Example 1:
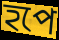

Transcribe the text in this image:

হপে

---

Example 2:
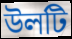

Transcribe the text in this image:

উলটি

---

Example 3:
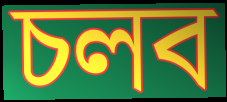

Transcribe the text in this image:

চলব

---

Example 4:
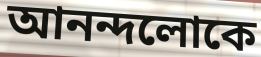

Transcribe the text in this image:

আনন্দলোকে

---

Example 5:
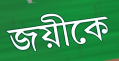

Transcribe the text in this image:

জয়ীকে